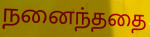
நனைந்ததை